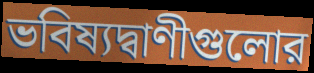
ভবিষ্যদ্বাণীগুলোর